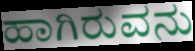
ಹಾಗಿರುವನು